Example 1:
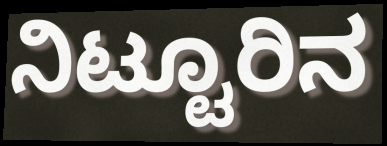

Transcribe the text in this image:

ನಿಟ್ಟೂರಿನ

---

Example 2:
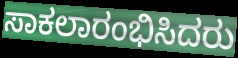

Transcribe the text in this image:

ಸಾಕಲಾರಂಭಿಸಿದರು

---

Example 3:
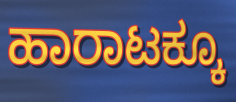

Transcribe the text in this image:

ಹಾರಾಟಕ್ಕೂ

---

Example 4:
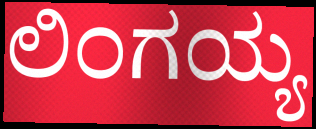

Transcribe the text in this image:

ಲಿಂಗಯ್ಯ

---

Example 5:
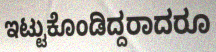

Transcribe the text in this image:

ಇಟ್ಟುಕೊಂಡಿದ್ದರಾದರೂ